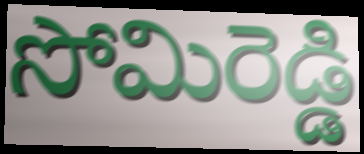
సోమిరెడ్డి